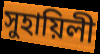
সুহায়িলী